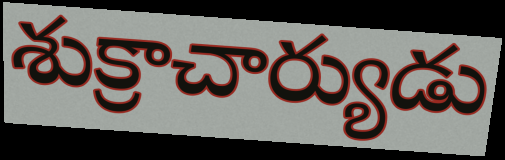
శుక్రాచార్యుడు